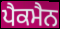
ਪੈਕਮੈਨ